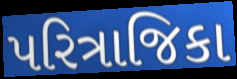
પરિત્રાજિકા